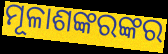
ମୂଳାଶଙ୍କରଙ୍କର